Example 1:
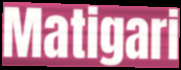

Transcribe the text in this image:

Matigari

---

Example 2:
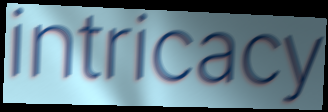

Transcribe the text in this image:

intricacy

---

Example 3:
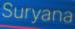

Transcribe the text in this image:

Suryana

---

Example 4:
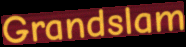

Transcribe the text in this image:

Grandslam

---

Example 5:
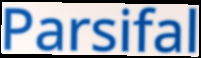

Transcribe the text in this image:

Parsifal